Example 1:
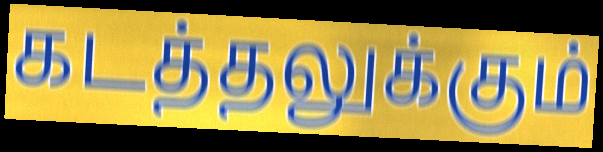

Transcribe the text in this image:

கடத்தலுக்கும்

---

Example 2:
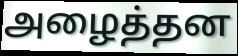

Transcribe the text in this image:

அழைத்தன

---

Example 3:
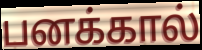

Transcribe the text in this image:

பனக்கால்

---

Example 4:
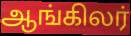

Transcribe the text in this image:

ஆங்கிலர்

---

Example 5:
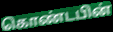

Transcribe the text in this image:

கொண்டபின்